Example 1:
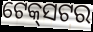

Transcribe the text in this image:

ଟେକ୍‌ସଟର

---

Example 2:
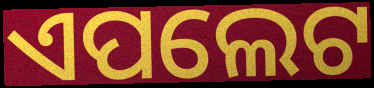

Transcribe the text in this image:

ଏପଲେଟ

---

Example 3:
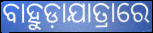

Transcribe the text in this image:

ବାହୁଡ଼ାଯାତ୍ରାରେ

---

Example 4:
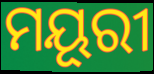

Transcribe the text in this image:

ମୟୂରୀ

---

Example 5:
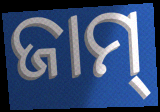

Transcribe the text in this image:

ଜାମ୍